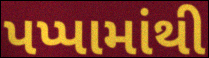
પપ્પામાંથી